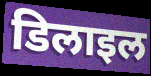
डिलाइल